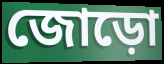
জোড়ো